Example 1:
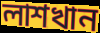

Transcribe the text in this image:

লাশখান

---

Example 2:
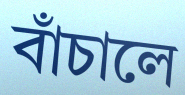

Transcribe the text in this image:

বাঁচালে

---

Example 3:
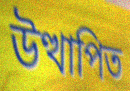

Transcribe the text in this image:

উত্থাপিত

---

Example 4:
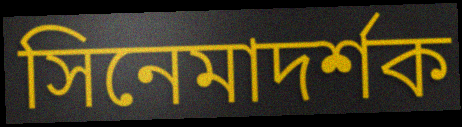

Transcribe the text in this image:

সিনেমাদর্শক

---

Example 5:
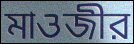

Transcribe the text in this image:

মাওজীর